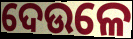
ଦେଉଳେ